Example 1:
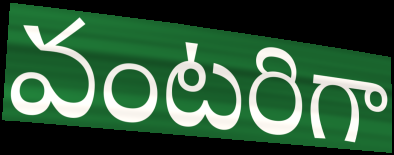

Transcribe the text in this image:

వంటరిగా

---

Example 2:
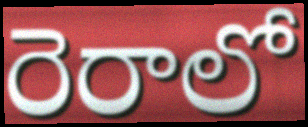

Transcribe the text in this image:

రెరాలో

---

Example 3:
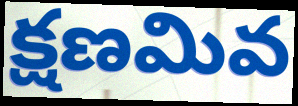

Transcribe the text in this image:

క్షణమివ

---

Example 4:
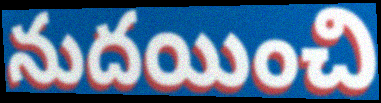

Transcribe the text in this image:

నుదయించి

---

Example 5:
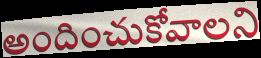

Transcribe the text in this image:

అందించుకోవాలని